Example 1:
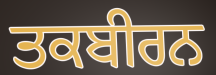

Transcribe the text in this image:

ਤਕਬੀਰਨ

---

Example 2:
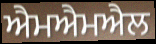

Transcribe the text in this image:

ਐਮਐਮਐਲ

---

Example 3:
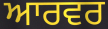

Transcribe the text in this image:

ਆਰਵਰ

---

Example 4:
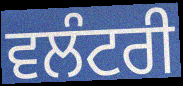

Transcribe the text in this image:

ਵਲੰਟਰੀ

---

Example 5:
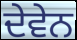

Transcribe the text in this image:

ਦੇਵੇਨ